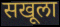
सखूला